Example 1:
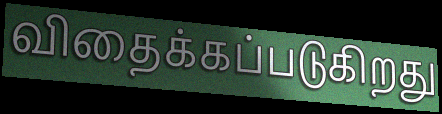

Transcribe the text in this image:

விதைக்கப்படுகிறது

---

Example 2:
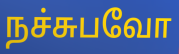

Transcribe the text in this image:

நச்சுபவோ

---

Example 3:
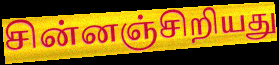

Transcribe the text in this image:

சின்னஞ்சிறியது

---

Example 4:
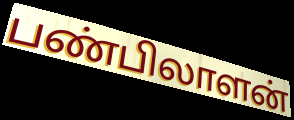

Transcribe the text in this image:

பண்பிலாளன்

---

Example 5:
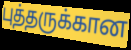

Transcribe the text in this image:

புத்தருக்கான